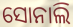
ସୋନାଲି